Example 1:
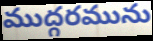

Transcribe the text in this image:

ముద్గరమును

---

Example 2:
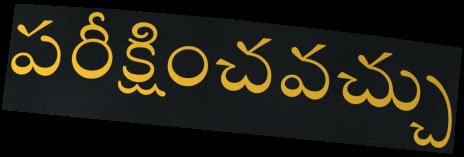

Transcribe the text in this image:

పరీక్షించవచ్చు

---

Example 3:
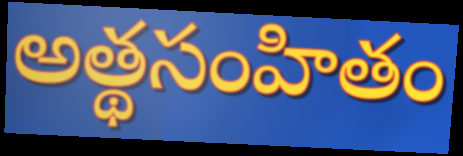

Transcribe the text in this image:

అత్థసంహితం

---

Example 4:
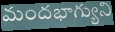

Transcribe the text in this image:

మందభాగ్యుని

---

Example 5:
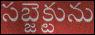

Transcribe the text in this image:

సబ్జెక్టును